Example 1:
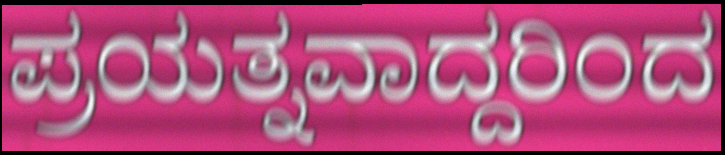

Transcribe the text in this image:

ಪ್ರಯತ್ನವಾದ್ದರಿಂದ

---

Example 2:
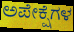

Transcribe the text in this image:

ಅಪೇಕ್ಷೆಗಳ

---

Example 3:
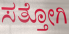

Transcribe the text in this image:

ಸತ್ತೋಗಿ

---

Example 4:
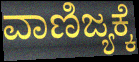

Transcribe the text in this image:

ವಾಣಿಜ್ಯಕ್ಕೆ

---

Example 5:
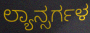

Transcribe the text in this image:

ಲ್ಯಾನ್ಸರ್ಗಳ